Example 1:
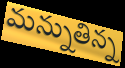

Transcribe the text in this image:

మన్నుతిన్న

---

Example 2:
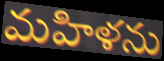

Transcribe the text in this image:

మహిళను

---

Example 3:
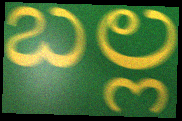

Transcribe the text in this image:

బల్ల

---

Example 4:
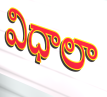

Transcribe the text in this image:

విధాలా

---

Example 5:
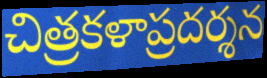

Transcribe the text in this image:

చిత్రకళాప్రదర్శన